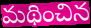
మథించిన